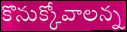
కొనుక్కోవాలన్న